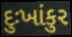
દુઃખાંકુર